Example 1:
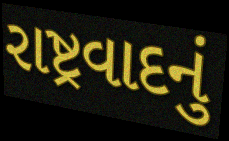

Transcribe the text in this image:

રાષ્ટ્રવાદનું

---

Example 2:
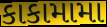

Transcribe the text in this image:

કાકામામા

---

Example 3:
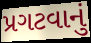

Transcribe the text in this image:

પ્રગટવાનું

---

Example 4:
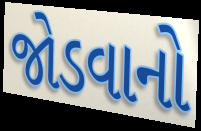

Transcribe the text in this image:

જોડવાનો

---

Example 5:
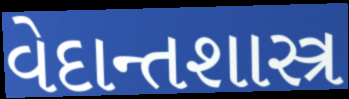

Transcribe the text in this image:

વેદાન્તશાસ્ત્ર